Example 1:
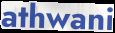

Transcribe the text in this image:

athwani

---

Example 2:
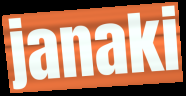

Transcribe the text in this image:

janaki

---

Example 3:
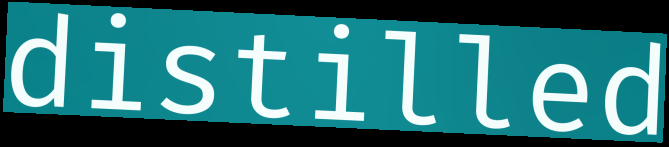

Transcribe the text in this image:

distilled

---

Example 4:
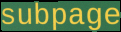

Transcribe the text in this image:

subpage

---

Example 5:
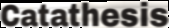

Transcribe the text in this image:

Catathesis